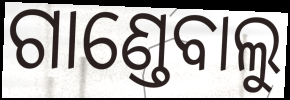
ଗାଣ୍ଡେବାଲୁ